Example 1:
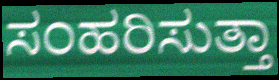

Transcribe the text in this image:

ಸಂಹರಿಸುತ್ತಾ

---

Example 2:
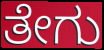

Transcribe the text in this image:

ತೇಗು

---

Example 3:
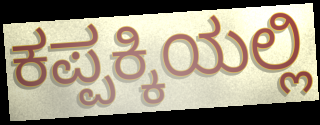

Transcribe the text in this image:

ಕಪ್ಪಕ್ಕಿಯಲ್ಲಿ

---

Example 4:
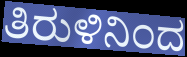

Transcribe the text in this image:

ತಿರುಳಿನಿಂದ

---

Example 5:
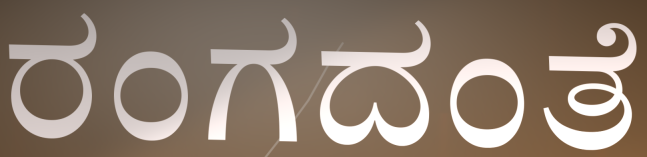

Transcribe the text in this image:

ರಂಗದಂತೆ